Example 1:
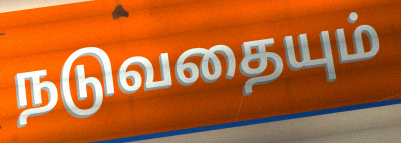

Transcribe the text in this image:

நடுவதையும்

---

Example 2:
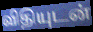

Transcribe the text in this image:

விதியுடன்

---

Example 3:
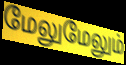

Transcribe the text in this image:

மேலுமேலும்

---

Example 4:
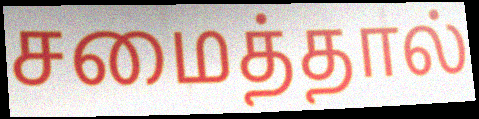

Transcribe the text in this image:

சமைத்தால்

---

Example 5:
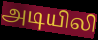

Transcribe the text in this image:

அடியிலி